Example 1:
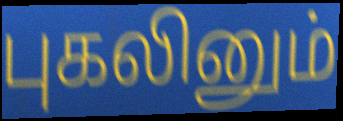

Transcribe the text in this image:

புகலினும்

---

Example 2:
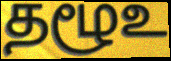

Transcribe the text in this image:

தழூஉ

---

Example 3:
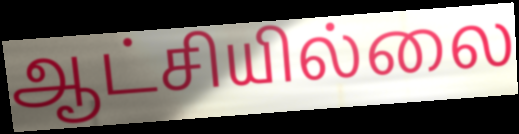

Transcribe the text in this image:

ஆட்சியில்லை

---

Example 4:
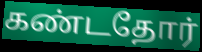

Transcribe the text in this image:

கண்டதோர்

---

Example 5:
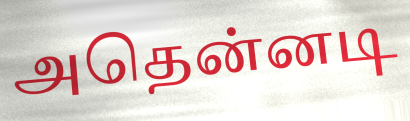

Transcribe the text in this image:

அதென்னடி